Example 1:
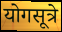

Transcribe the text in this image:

योगसूत्रे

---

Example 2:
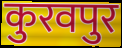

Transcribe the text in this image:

कुरवपुर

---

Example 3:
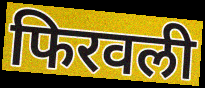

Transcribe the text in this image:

फिरवली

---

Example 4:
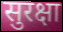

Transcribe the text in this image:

सुरक्षा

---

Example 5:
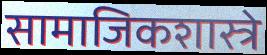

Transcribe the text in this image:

सामाजिकशास्त्रे